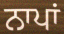
ਨਾਪਾਂ